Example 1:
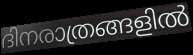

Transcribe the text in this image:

ദിനരാത്രങ്ങളിൽ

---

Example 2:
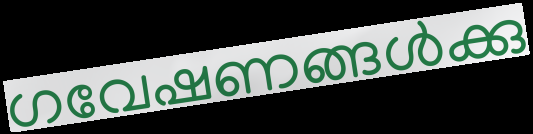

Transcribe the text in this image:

ഗവേഷണങ്ങൾക്കു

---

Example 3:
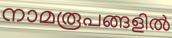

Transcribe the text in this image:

നാമരൂപങ്ങളിൽ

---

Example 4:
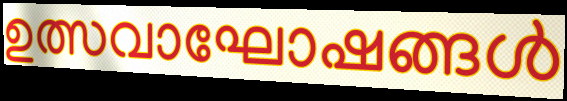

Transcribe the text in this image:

ഉത്സവാഘോഷങ്ങൾ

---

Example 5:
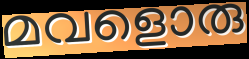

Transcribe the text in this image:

മവളൊരു